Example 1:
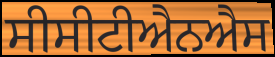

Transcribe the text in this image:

ਸੀਸੀਟੀਐਨਐਸ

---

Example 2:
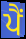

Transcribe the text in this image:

ਪੈਂ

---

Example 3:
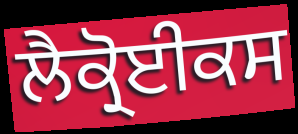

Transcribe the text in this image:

ਲੈਕ੍ਰੋਈਕਸ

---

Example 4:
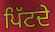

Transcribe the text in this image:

ਪਿੱਟਦੇ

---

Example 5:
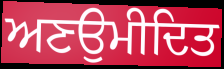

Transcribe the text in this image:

ਅਣਉਮੀਦਿਤ